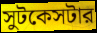
সুটকেসটার